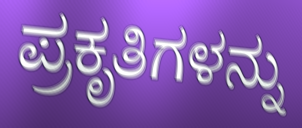
ಪ್ರಕೃತಿಗಳನ್ನು